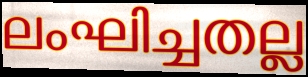
ലംഘിച്ചതല്ല